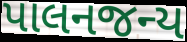
પાલનજન્ય